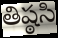
తిష్ఠసి